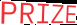
PRIZE